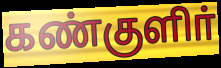
கண்குளிர்